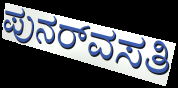
ಪುನರ್‌ವಸತಿ